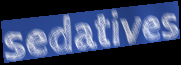
sedatives